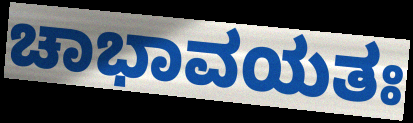
ಚಾಭಾವಯತಃ